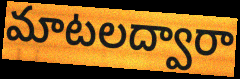
మాటలద్వారా